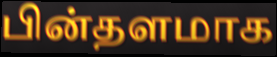
பின்தளமாக